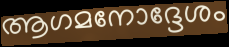
ആഗമനോദ്ദേശം